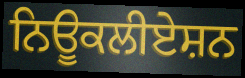
ਨਿਊਕਲੀਏਸ਼ਨ